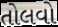
તોલવો